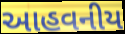
આહવનીય